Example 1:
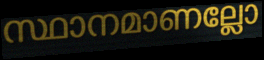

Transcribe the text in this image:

സ്ഥാനമാണല്ലോ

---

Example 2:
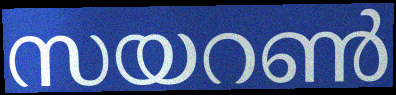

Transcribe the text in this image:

സയറൺ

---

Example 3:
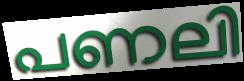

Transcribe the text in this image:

പണലി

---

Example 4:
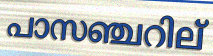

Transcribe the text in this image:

പാസഞ്ചറില്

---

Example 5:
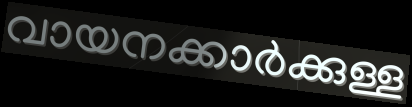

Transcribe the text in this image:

വായനക്കാർക്കുള്ള